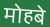
मोहबे